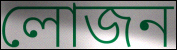
লোজন